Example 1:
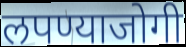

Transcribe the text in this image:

लपण्याजोगी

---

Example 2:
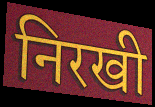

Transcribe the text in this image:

निरखी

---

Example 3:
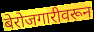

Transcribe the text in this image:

बेरोजगारीवरून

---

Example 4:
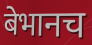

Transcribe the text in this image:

बेभानच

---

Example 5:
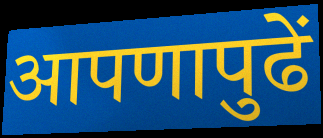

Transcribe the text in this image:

आपणापुढें